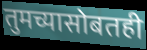
तुमच्यासोबतही